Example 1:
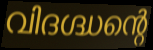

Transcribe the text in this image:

വിദഗ്ദ്ധന്റെ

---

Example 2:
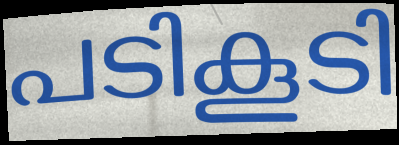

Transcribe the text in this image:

പടികൂടി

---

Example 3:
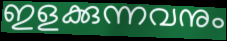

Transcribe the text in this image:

ഇളക്കുന്നവനും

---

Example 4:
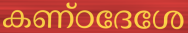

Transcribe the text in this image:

കണ്ഠദേശേ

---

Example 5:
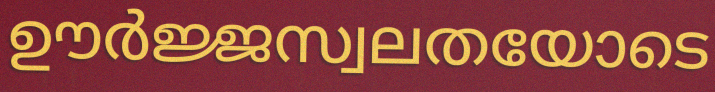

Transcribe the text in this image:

ഊർജ്ജസ്വലതയോടെ